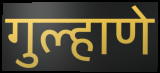
गुल्हाणे